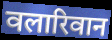
वलारिवान